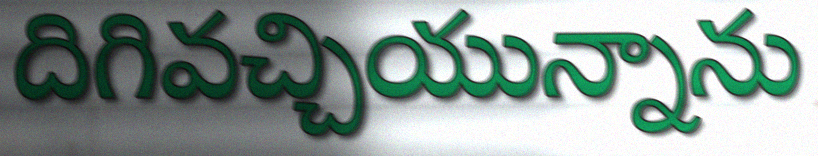
దిగివచ్చియున్నాను